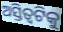
ଅସ୍ତିତ୍ୱଟିକୁ